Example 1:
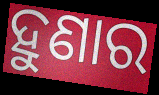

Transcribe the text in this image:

ହୁଣାର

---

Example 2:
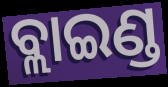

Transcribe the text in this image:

ବ୍ଲାଇଣ୍ଡ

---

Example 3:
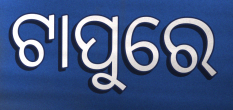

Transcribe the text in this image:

ଟାପୁରେ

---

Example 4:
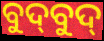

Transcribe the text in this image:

ବୁଦ୍‍ବୁଦ୍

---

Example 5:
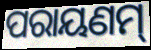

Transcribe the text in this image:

ପରାୟଣମ୍